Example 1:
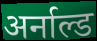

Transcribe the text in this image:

अर्नाल्ड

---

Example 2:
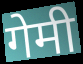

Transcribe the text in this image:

गेमी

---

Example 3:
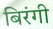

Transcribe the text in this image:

बिरंगी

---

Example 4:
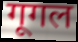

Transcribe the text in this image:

गूगल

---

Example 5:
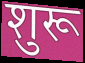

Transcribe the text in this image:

शुरू